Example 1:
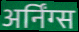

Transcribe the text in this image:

अर्निंग्स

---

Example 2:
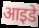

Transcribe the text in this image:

आइडे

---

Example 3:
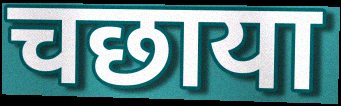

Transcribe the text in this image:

चछाया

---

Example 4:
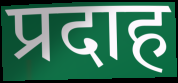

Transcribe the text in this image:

प्रदाह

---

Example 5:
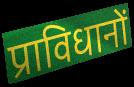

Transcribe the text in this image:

प्राविधानों